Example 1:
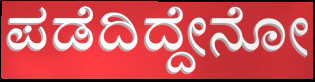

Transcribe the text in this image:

ಪಡೆದಿದ್ದೇನೋ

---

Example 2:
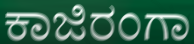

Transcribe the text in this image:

ಕಾಜಿರಂಗಾ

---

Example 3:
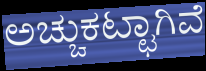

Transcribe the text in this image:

ಅಚ್ಚುಕಟ್ಟಾಗಿವೆ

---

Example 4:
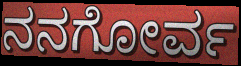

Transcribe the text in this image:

ನನಗೋರ್ವ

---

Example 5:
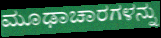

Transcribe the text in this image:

ಮೂಢಾಚಾರಗಳನ್ನು